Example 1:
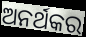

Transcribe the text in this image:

ଅନର୍ଥକର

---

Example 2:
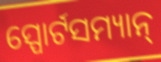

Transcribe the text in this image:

ସ୍ପୋର୍ଟସମ୍ୟାନ୍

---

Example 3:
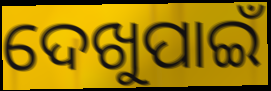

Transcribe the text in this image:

ଦେଖୁପାଇଁ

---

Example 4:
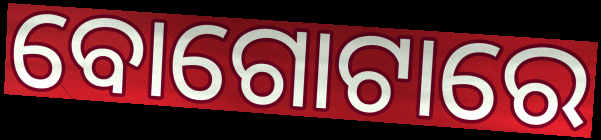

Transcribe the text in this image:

ବୋଗୋଟାରେ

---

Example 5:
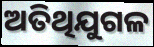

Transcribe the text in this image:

ଅତିଥିଯୁଗଳ